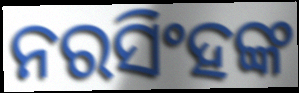
ନରସିଂହଙ୍କ